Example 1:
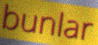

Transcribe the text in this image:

bunlar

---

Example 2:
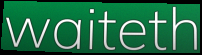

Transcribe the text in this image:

waiteth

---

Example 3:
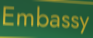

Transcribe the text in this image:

Embassy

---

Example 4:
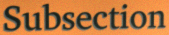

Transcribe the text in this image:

Subsection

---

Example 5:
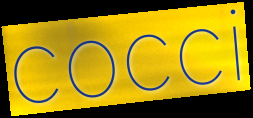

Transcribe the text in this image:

cocci